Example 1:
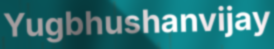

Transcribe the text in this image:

Yugbhushanvijay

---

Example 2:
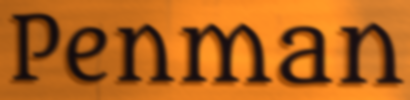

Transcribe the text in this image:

Penman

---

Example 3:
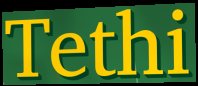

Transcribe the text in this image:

Tethi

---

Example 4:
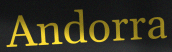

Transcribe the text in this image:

Andorra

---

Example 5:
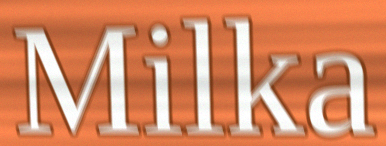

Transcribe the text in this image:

Milka